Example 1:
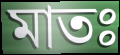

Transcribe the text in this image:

মাতঃ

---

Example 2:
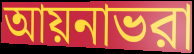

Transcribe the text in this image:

আয়নাভরা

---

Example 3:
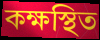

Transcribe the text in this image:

কক্ষস্থিত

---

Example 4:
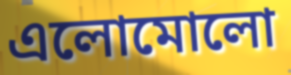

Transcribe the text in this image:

এলোমোলো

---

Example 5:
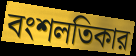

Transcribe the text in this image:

বংশলতিকার